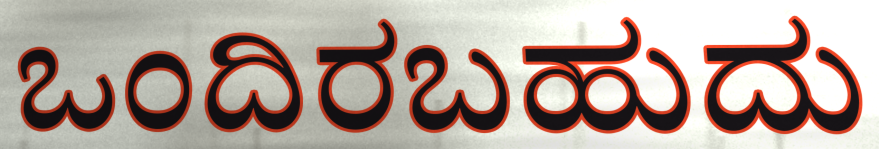
ಒಂದಿರಬಹುದು